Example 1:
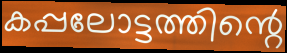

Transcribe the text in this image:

കപ്പലോട്ടത്തിന്റെ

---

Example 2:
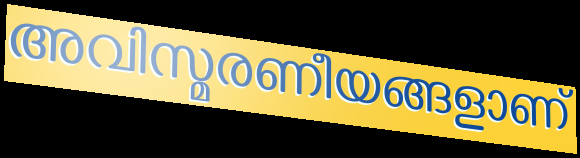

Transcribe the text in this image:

അവിസ്മരണീയങ്ങളാണ്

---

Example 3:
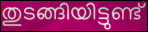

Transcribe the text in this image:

തുടങ്ങിയിട്ടുണ്ട്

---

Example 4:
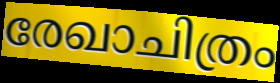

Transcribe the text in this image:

രേഖാചിത്രം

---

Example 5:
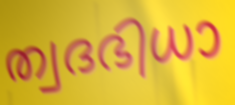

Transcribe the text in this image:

ത്വദഭിധാ